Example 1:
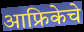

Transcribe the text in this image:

आफ्रिकेचे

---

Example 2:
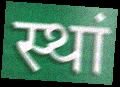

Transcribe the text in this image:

स्थां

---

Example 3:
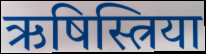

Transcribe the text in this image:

ऋषिस्त्रिया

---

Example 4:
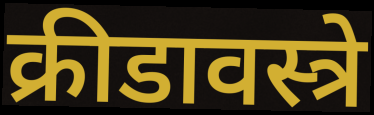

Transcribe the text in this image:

क्रीडावस्त्रे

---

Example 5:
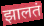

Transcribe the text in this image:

झालतं